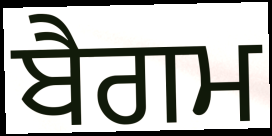
ਬੈਗਮ